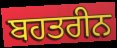
ਬਹਤਰੀਨ